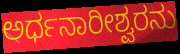
ಅರ್ಧನಾರೀಶ್ವರನು